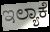
ಇಲ್ಯಾಕೆ